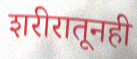
शरीरातूनही